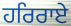
ਹਰਿਰਾਏ